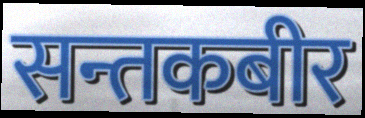
सन्तकबीर